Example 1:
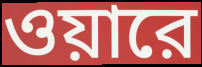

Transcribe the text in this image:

ওয়ারে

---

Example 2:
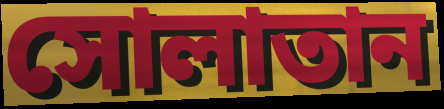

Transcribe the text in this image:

সোলাতান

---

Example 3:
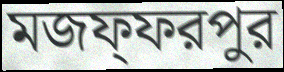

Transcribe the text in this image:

মজফ্ফরপুর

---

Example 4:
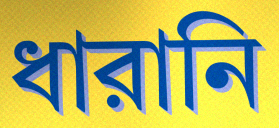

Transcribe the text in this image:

ধারানি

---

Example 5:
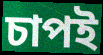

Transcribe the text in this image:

চাপই